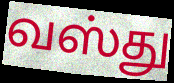
வஸ்து